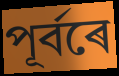
পূৰ্বৰে